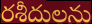
రశీదులను